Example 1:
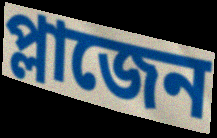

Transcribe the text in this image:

প্লাজেন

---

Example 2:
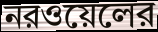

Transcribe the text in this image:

নরওয়েলের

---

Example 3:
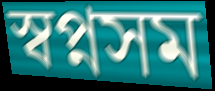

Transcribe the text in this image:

স্বপ্নসম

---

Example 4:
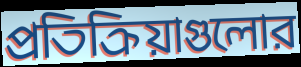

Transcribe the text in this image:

প্রতিক্রিয়াগুলোর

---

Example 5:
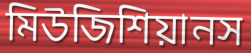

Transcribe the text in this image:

মিউজিশিয়ানস